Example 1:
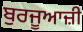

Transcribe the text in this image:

ਬੁਰਜੂਆਜ਼ੀ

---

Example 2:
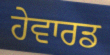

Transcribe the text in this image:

ਹੇਵਾਰਡ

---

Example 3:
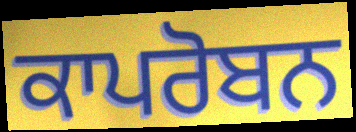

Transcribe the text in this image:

ਕਾਪਰੋਬਨ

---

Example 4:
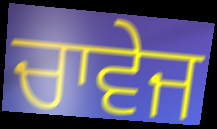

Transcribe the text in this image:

ਚਾਵੇਜ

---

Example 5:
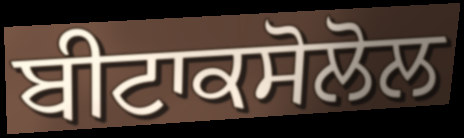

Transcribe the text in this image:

ਬੀਟਾਕਸੋਲੋਲ